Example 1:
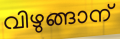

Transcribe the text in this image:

വിഴുങ്ങാന്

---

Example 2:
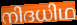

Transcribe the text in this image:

നിദധിഥ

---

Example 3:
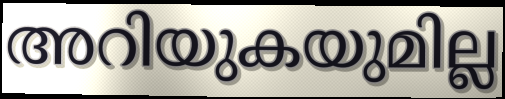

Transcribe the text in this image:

അറിയുകയുമില്ല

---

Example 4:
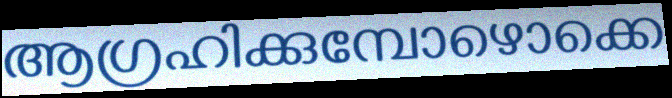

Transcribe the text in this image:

ആഗ്രഹിക്കുമ്പോഴൊക്കെ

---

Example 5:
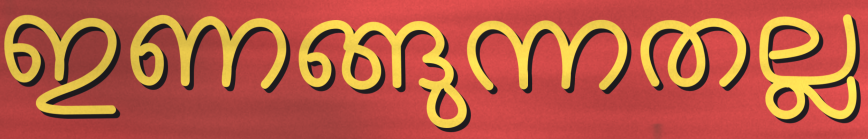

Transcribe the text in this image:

ഇണങ്ങുന്നതല്ല